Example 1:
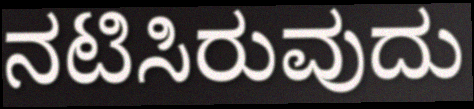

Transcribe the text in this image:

ನಟಿಸಿರುವುದು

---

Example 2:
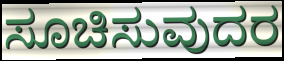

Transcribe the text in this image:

ಸೂಚಿಸುವುದರ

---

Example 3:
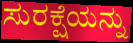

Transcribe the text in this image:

ಸುರಕ್ಷೆಯನ್ನು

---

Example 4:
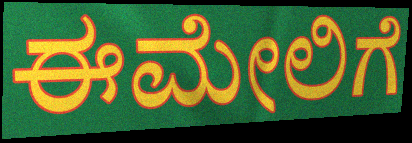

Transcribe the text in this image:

ಈಮೇಲಿಗೆ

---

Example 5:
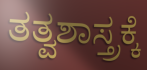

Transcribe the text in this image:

ತತ್ವಶಾಸ್ತ್ರಕ್ಕೆ